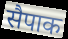
सैपाक